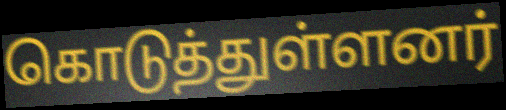
கொடுத்துள்ளனர்